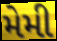
મેમી